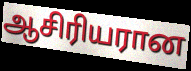
ஆசிரியரான